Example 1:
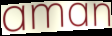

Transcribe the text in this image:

aman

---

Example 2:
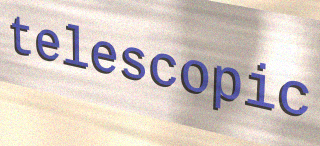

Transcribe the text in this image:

telescopic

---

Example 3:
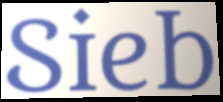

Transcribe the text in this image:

Sieb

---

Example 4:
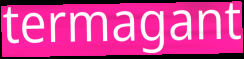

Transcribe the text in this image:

termagant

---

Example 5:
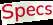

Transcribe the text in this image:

Specs